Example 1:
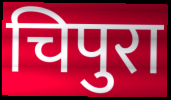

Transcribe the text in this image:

चिपुरा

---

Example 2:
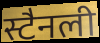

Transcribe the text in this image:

स्टैनली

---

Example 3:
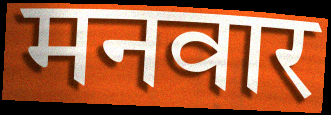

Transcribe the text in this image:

मनवार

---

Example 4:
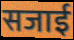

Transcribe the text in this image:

सजाई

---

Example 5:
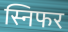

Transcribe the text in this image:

स्निफर